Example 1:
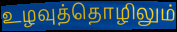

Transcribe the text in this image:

உழவுத்தொழிலும்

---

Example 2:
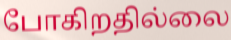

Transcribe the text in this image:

போகிறதில்லை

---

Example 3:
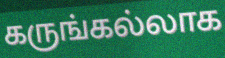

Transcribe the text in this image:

கருங்கல்லாக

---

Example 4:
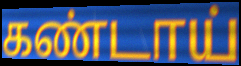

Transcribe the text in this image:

கண்டாய்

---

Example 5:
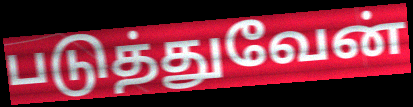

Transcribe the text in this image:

படுத்துவேன்